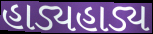
હાડ્યહાડ્ય